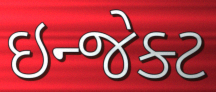
ઇન્જેક્ટ